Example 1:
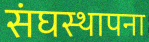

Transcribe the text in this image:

संघस्थापना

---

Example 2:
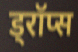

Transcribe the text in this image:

ड्रॉप्स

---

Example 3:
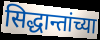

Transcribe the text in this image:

सिद्धान्तांच्या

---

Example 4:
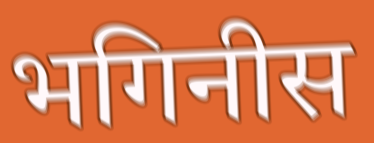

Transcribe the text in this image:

भगिनीस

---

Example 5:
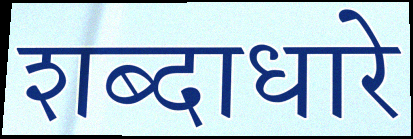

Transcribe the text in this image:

शब्दाधारे